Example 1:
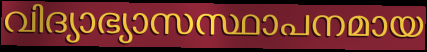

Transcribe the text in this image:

വിദ്യാഭ്യാസസ്ഥാപനമായ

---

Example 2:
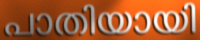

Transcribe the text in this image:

പാതിയായി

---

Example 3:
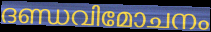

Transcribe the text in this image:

ദണ്ഡവിമോചനം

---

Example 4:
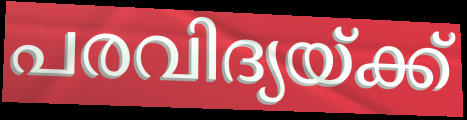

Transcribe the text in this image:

പരവിദ്യയ്ക്ക്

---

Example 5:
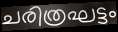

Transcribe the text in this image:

ചരിത്രഘട്ടം